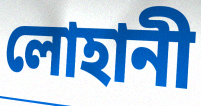
লোহানী